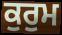
ਕੁਰੁਮ